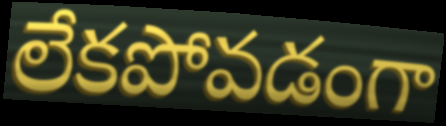
లేకపోవడంగా